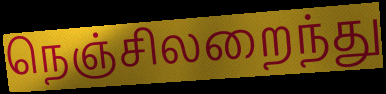
நெஞ்சிலறைந்து